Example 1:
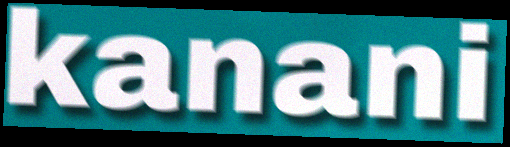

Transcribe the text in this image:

kanani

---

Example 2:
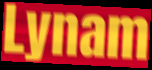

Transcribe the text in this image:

Lynam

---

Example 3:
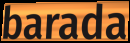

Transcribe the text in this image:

barada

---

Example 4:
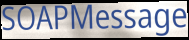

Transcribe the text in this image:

SOAPMessage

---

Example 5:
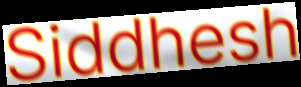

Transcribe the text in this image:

Siddhesh